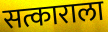
सत्काराला